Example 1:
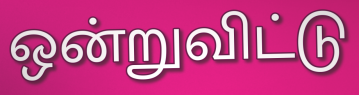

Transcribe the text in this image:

ஒன்றுவிட்டு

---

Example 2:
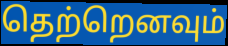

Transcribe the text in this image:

தெற்றெனவும்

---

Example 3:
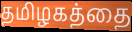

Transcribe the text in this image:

தமிழகத்தை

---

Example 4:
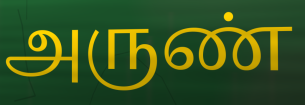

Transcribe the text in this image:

அருண்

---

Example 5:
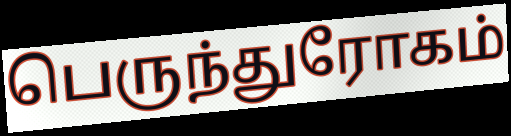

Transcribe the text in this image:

பெருந்துரோகம்